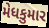
મેધકુમાર